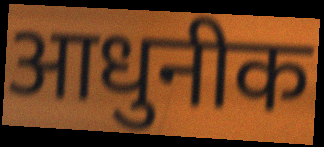
आधुनीक